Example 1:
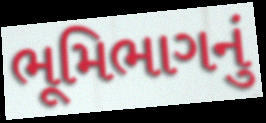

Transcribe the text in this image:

ભૂમિભાગનું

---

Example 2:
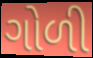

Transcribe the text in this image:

ગોળી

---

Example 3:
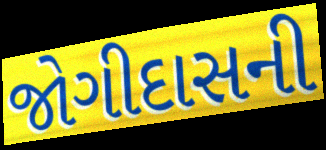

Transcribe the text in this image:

જોગીદાસની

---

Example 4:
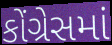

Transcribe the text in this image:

કોંગ્રેસમાં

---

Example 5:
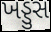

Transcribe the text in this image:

ખડ્ડુસ